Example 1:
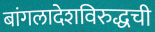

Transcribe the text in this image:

बांगलादेशविरुद्धची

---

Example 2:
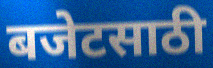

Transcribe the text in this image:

बजेटसाठी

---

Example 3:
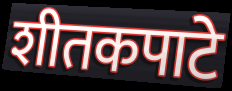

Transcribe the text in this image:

शीतकपाटे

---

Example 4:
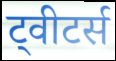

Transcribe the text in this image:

ट्वीटर्स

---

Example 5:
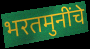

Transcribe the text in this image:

भरतमुनींचे